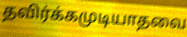
தவிர்க்கமுடியாதவை